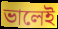
ভালেই